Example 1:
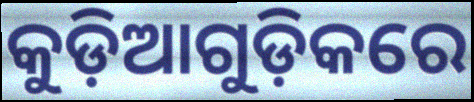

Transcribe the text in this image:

କୁଡ଼ିଆଗୁଡ଼ିକରେ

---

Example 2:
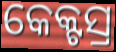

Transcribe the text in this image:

କେକ୍ଟସ୍ର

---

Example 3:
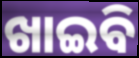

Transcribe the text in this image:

ଖାଇବି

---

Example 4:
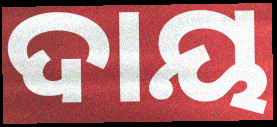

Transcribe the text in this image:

ଦାୟ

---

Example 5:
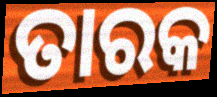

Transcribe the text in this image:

ତାରକ